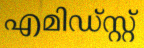
എമിഡ്സ്റ്റ്